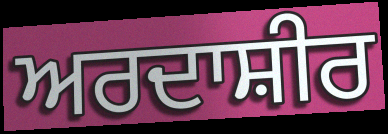
ਅਰਦਾਸ਼ੀਰ